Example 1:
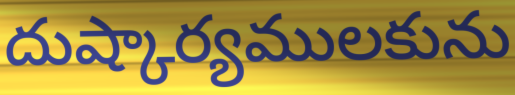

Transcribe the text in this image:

దుష్కార్యములకును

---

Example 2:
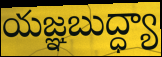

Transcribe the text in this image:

యజ్ఞబుద్ధ్యా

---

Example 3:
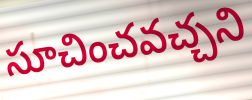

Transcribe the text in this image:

సూచించవచ్చని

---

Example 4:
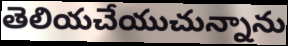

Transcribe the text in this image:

తెలియచేయుచున్నాను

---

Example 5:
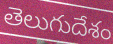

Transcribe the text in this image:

తెలుగుదేశం